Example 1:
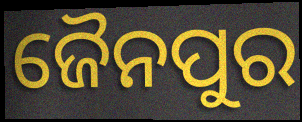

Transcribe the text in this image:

ଜୈନପୁର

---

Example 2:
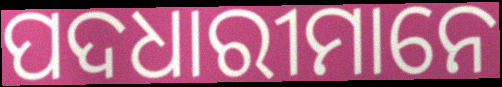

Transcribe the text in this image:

ପଦଧାରୀମାନେ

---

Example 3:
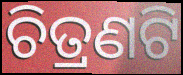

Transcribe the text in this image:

ଚିତ୍ରଣଟି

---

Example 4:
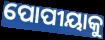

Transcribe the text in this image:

ପୋପୀୟାକୁ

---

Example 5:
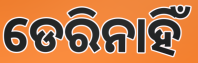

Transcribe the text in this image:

ଡେରିନାହିଁ